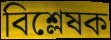
বিশ্লেষক